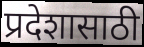
प्रदेशासाठी